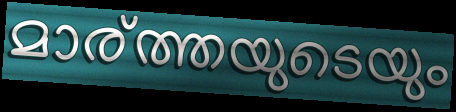
മാര്ത്തയുടെയും